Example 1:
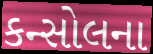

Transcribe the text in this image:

કન્સોલના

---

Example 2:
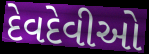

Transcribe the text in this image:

દેવદેવીઓ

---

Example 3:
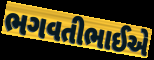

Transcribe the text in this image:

ભગવતીભાઈએ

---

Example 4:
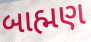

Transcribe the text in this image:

બાહ્મણ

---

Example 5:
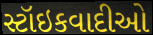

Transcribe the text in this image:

સ્ટૉઇકવાદીઓ